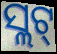
ସ୍ଲଟ୍